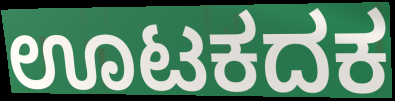
ಊಟಕದಕ